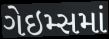
ગેઇમ્સમાં